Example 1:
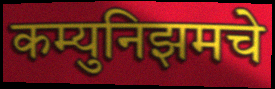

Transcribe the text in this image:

कम्युनिझमचे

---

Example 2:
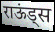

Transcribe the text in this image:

राऊंड्स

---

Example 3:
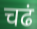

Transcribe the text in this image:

चढं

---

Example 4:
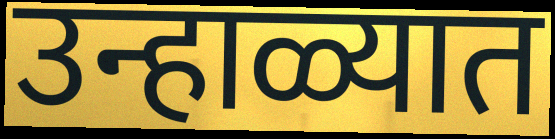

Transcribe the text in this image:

उन्हाळ्यात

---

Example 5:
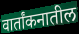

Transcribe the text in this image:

वार्तांकनातील